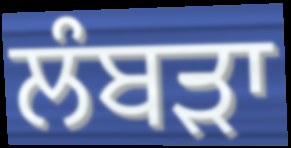
ਲੰਬੜਾ